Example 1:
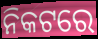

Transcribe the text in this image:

ନିକଟରେ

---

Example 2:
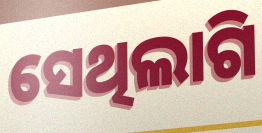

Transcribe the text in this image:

ସେଥିଲାଗି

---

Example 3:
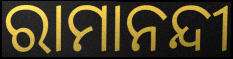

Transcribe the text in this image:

ରାମାନନ୍ଦୀ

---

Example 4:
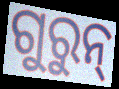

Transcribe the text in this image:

ଗୁରୁନ୍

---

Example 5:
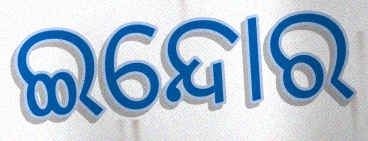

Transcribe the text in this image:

ଇନ୍ଦୋର